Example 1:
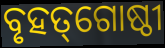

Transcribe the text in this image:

ବୃହତ୍‌ଗୋଷ୍ଠୀ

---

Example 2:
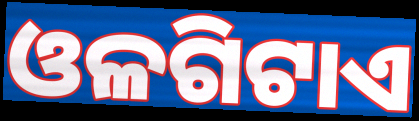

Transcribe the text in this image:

ଓଳଗିଟାଏ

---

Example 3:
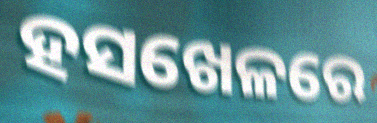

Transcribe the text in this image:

ହସଖେଳରେ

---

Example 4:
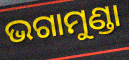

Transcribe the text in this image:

ଭଗାମୁଣ୍ଡା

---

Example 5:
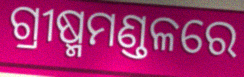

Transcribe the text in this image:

ଗ୍ରୀଷ୍ମମଣ୍ଡଳରେ